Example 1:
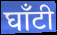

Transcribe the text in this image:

घाँटी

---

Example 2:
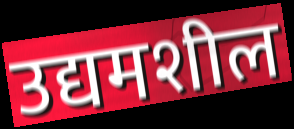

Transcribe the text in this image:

उद्यमशील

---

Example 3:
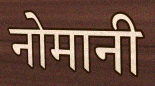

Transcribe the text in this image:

नोमानी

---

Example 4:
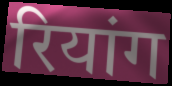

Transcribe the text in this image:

रियांग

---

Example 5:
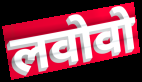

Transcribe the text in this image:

लवोवो